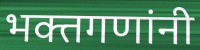
भक्तगणांनी